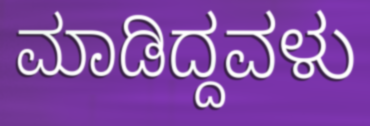
ಮಾಡಿದ್ದವಳು